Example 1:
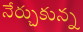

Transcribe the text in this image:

నేర్చుకున్న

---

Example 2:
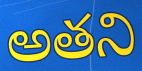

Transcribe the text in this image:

అతని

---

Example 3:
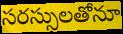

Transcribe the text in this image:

సరస్సులతోనూ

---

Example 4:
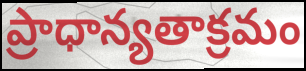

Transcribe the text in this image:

ప్రాధాన్యతాక్రమం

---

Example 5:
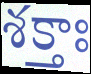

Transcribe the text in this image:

శక్తాః